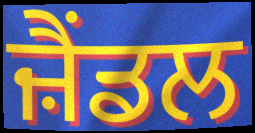
ਜ਼ੈਂਡਲ